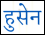
हुसेन